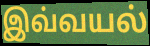
இவ்வயல்